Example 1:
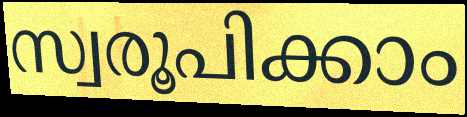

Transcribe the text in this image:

സ്വരൂപിക്കാം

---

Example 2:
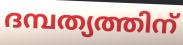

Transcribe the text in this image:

ദമ്പത്യത്തിന്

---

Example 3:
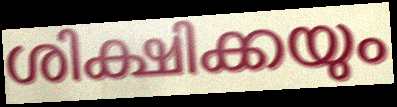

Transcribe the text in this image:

ശിക്ഷിക്കയും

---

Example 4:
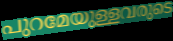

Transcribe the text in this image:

പുറമേയുള്ളവരുടെ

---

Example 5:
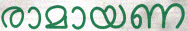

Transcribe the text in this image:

രാമായണ